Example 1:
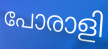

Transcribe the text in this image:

പോരാളി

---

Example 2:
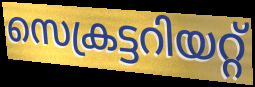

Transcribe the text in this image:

സെക്രട്ടറിയറ്റ്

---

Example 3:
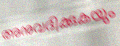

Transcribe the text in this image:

അനുവദിക്കുകയും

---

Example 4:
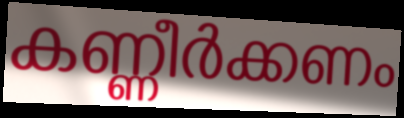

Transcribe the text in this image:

കണ്ണീർക്കണം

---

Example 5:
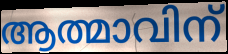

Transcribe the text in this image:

ആത്മാവിന്